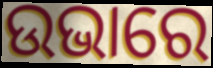
ଉଭାରେ